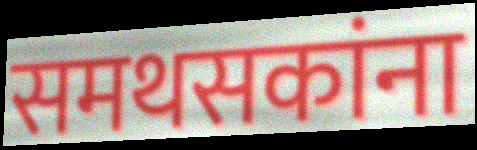
समथसकांना